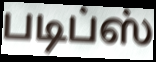
படிப்ஸ்